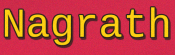
Nagrath